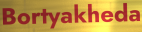
Bortyakheda